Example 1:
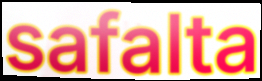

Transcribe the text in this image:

safalta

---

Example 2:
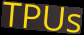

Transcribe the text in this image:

TPUs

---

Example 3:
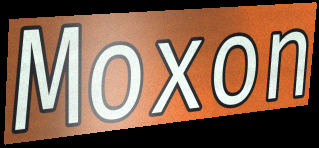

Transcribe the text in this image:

Moxon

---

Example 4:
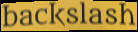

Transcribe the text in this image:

backslash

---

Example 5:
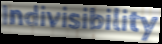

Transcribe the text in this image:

Indivisibility